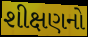
શીક્ષણનો